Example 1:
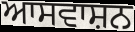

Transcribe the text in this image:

ਆਸਵਾਸ਼ਨ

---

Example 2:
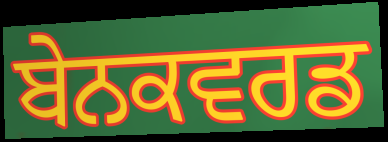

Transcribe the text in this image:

ਬੇਨਕਵਰਡ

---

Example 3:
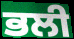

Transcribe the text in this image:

ਭਲੀ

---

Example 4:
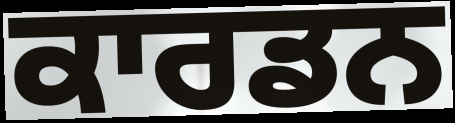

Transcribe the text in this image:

ਕਾਰਡਨ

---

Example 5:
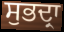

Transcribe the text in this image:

ਸੁਭਦ੍ਰਾ